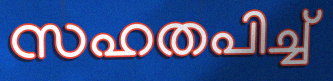
സഹതപിച്ച്